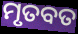
ମୃତବତ